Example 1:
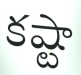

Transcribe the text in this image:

కష్టా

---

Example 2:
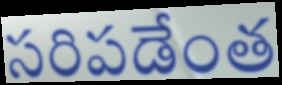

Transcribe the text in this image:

సరిపడేంత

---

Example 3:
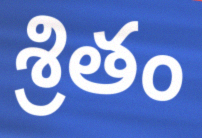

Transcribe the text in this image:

శ్రితం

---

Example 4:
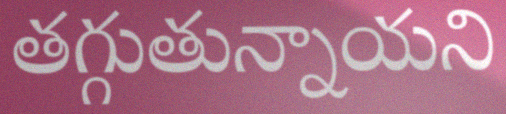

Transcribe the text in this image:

తగ్గుతున్నాయని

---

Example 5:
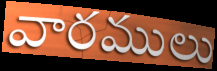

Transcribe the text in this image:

వారములు